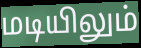
மடியிலும்